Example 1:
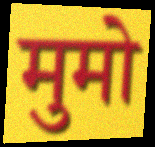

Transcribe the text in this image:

मुमो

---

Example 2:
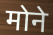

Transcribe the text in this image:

मोने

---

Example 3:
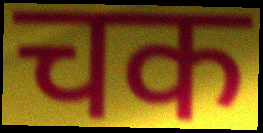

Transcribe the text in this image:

चक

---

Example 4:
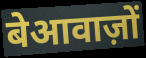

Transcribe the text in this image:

बेआवाज़ों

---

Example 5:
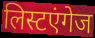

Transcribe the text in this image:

लिस्टएंगेज